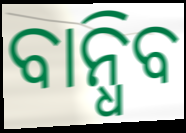
ବାନ୍ଧିବ